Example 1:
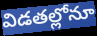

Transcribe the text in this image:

విడతల్లోనూ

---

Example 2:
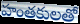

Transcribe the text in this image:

హంతకులతో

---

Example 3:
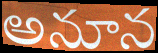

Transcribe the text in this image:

అనూన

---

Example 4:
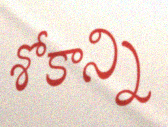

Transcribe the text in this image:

శోకాన్ని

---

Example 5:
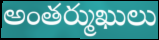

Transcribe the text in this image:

అంతర్ముఖులు